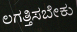
ಲಗತ್ತಿಸಬೇಕು